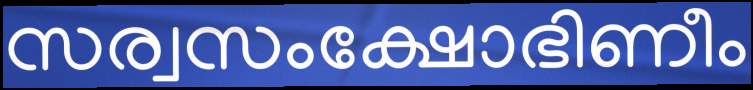
സര്വസംക്ഷോഭിണീം